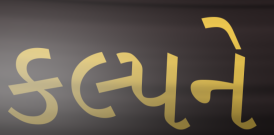
કલ્પને